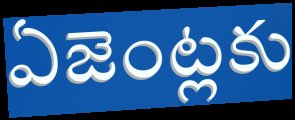
ఏజెంట్లకు